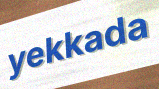
yekkada